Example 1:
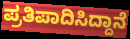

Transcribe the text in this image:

ಪ್ರತಿಪಾದಿಸಿದ್ದಾನೆ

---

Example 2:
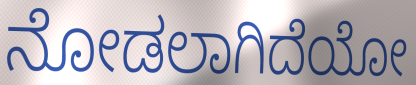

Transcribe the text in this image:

ನೋಡಲಾಗಿದೆಯೋ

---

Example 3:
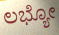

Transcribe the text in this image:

ಲಭ್ಯೋ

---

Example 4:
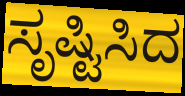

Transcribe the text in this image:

ಸೃಷ್ಟಿಸಿದ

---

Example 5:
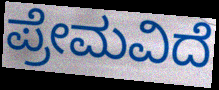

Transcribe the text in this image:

ಪ್ರೇಮವಿದೆ